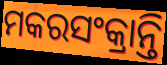
ମକରସଂକ୍ରାନ୍ତି